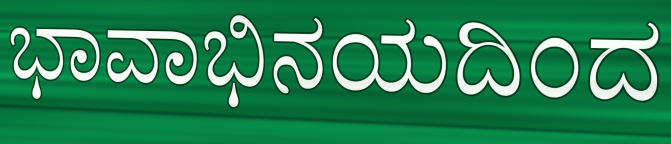
ಭಾವಾಭಿನಯದಿಂದ